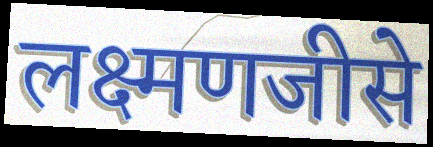
लक्ष्मणजीसे